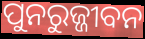
ପୁନରୁଜ୍ଜୀବନ